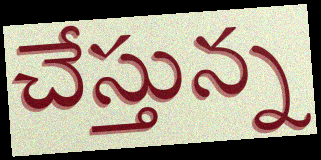
చేస్తున్న